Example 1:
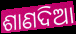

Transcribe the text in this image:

ଶାଣଦିଆ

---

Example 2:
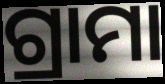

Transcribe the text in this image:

ଗ୍ରାମା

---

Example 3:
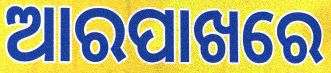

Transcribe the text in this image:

ଆରପାଖରେ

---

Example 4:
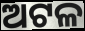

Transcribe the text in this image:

ଅଟଳ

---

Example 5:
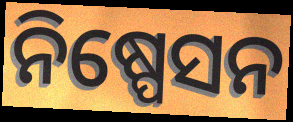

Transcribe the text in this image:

ନିଷ୍ପେସନ